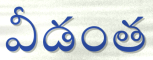
వీడంత